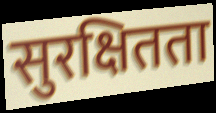
सुरक्षितता